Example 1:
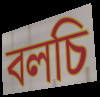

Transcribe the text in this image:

বলচি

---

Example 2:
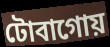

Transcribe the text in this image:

টোবাগোয়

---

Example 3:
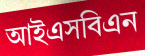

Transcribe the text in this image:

আইএসবিএন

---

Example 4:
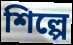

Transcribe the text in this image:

শিল্পে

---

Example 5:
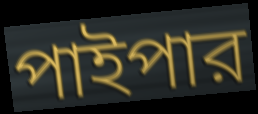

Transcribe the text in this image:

পাইপার